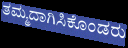
ತಮ್ಮದಾಗಿಸಿಕೊಂಡರು